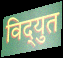
विद्‌युत